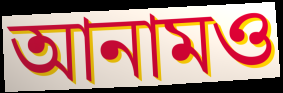
আনামও